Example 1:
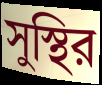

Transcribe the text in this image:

সুস্থির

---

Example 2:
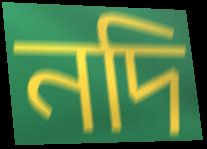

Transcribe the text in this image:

নদি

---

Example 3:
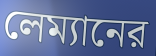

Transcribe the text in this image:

লেম্যানের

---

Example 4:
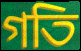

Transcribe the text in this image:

গতি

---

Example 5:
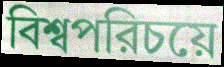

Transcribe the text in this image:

বিশ্বপরিচয়ে